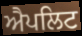
ਐਪਲਿਟ